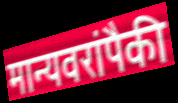
मान्यवरांपैकी